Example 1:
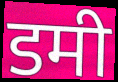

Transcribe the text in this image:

डमी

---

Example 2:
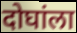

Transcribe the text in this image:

दोघांला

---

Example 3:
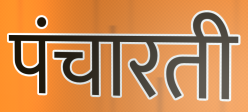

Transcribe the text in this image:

पंचारती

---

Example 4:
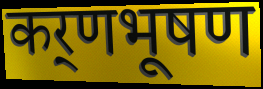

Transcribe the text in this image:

कर्णभूषण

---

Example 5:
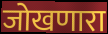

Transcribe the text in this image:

जोखणारा